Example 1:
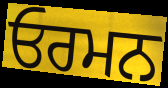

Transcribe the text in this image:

ਓਰਮਨ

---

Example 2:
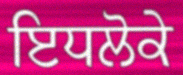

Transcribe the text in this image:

ਇਧਲੋਕੇ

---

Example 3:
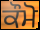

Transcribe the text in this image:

ਕੌਮੋ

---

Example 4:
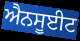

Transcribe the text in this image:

ਐਨਸੂਈਟ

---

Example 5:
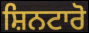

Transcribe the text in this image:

ਸ਼ਿਨਟਾਰੋ